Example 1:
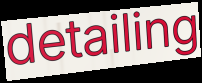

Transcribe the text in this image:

detailing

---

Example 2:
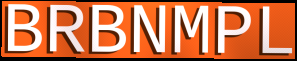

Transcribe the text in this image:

BRBNMPL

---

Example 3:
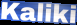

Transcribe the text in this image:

Kaliki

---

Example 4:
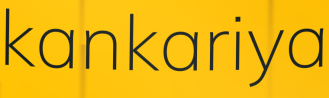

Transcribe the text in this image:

kankariya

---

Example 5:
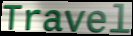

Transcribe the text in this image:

Travel